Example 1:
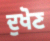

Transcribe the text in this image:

ਦੁਖੋਣ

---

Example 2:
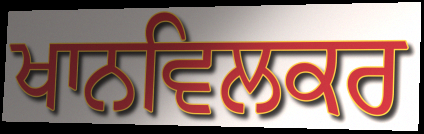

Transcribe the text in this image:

ਖਾਨਵਿਲਕਰ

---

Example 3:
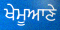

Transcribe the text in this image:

ਖੇਮੂਆਣੇ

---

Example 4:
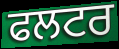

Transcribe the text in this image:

ਫਲਟਰ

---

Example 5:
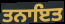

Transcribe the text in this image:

ਤਨਾਇਤ